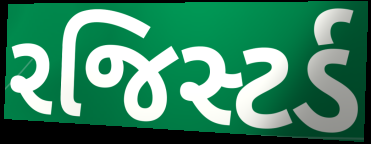
રજિસ્ટર્ડ